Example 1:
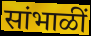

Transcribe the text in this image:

सांभाळीं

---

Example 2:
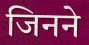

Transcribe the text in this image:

जिनने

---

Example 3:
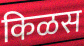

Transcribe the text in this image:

किळस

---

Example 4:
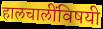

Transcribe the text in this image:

हालचालींविषयी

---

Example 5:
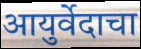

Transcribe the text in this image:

आयुर्वेदाचा